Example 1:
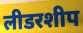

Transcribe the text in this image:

लीडरशीप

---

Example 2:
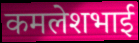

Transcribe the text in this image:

कमलेशभाई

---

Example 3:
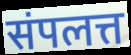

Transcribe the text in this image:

संपलत्त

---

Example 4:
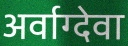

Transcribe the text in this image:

अर्वाग्देवा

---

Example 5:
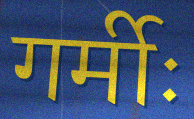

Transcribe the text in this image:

गर्मीः